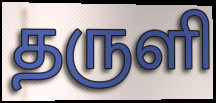
தருளி